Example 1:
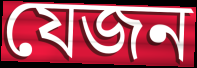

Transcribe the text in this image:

যেজন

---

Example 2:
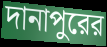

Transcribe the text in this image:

দানাপুরের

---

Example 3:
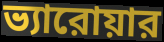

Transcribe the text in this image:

ভ্যারোয়ার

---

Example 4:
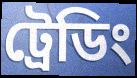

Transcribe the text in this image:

ট্রেডিং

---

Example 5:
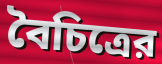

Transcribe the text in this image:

বৈচিত্রের